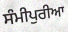
ਸੰਮੀਪੁਰੀਆ